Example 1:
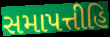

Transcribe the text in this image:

સમાપત્તીહિ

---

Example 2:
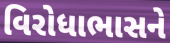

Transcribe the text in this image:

વિરોધાભાસને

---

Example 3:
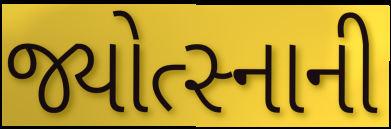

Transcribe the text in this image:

જ્યોત્સ્નાની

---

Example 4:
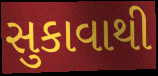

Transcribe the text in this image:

સુકાવાથી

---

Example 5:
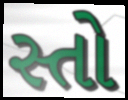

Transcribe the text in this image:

સ્તો